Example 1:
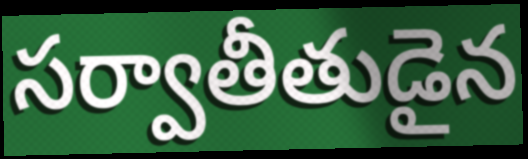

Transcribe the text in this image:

సర్వాతీతుడైన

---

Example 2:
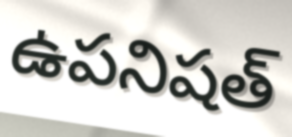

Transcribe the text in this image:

ఉపనిషత్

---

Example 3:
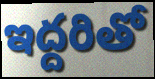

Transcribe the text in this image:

ఇద్దరితో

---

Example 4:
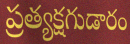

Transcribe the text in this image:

ప్రత్యక్షగుడారం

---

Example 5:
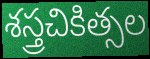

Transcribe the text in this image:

శస్త్రచికిత్సల